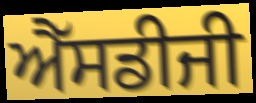
ਐੱਸਡੀਜੀ